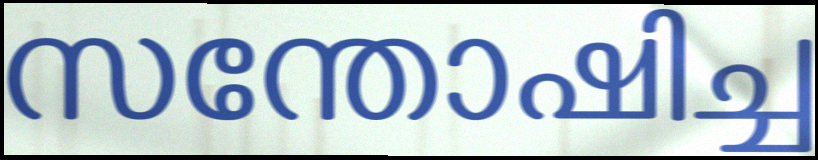
സന്തോഷിച്ച